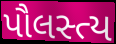
પૌલસ્ત્ય